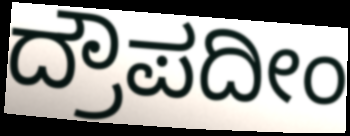
ದ್ರೌಪದೀಂ